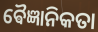
ଵୈଜ୍ଞାନିକତା